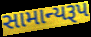
સામાન્યરૂપ